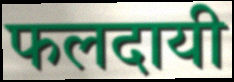
फलदायी